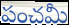
పంచమీ